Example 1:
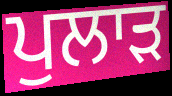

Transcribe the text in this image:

ਪੁਲਾੜ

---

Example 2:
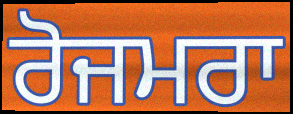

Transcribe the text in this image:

ਰੋਜਮਰਾ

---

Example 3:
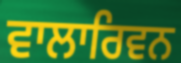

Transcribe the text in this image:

ਵਾਲਾਰਿਵਨ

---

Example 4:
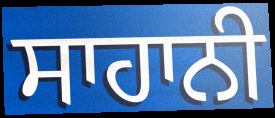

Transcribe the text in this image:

ਸਾਹਾਨੀ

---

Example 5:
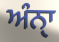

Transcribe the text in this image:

ਅੰਨੑਾ